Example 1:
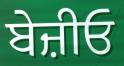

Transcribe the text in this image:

ਬੇਜ਼ੀਓ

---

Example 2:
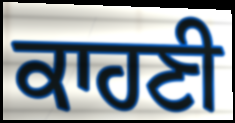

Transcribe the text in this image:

ਕਾਹਣੀ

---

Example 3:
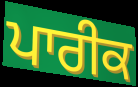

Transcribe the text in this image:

ਪਾਰੀਕ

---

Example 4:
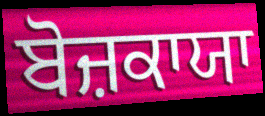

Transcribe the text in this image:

ਬੋਜ਼ਕਾਯਾ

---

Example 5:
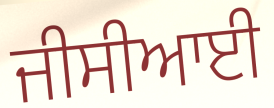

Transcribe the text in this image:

ਜੀਸੀਆਈ